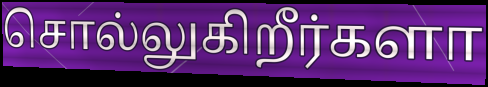
சொல்லுகிறீர்களா